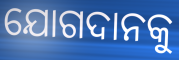
ଯୋଗଦାନକୁ